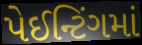
પેઈન્ટિંગમાં